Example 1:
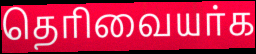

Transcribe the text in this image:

தெரிவையர்க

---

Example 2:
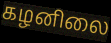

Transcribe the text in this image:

கழனிலை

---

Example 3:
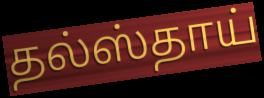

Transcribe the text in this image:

தல்ஸ்தாய்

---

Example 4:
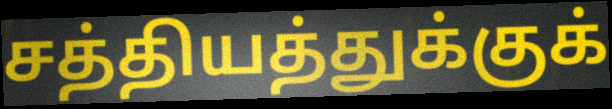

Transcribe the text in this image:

சத்தியத்துக்குக்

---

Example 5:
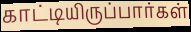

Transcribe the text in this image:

காட்டியிருப்பார்கள்